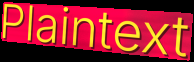
Plaintext